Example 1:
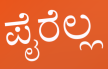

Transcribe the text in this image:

ಪೈರೆಲ್ಲ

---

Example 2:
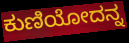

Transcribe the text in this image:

ಕುಣಿಯೋದನ್ನ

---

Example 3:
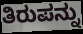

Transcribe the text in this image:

ತಿರುಪನ್ನು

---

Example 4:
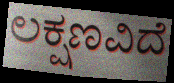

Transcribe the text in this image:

ಲಕ್ಷಣವಿದೆ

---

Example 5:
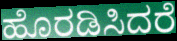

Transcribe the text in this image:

ಹೊರಡಿಸಿದರೆ